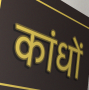
कांधों